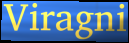
Viragni